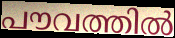
പൗവത്തിൽ